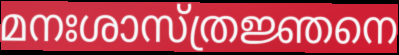
മനഃശാസ്ത്രജ്ഞനെ